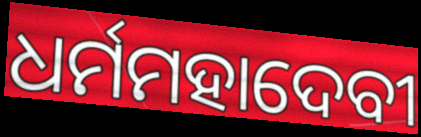
ଧର୍ମମହାଦେବୀ